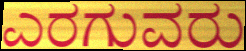
ಎರಗುವರು